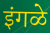
इंगळे